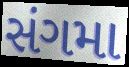
સંગમા